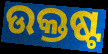
ଉକ୍ତଷ୍ଟ